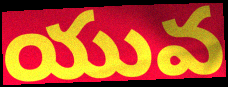
యువ